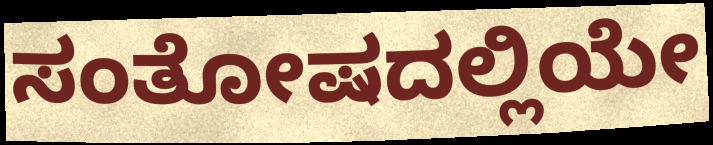
ಸಂತೋಷದಲ್ಲಿಯೇ